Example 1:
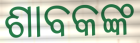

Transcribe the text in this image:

ଶାବକଙ୍କ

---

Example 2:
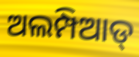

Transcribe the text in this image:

ଅଲମ୍ପିଆଡ୍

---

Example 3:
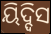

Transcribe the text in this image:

ୟିଦ୍ଦିସ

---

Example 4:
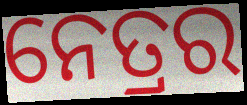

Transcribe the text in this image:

ନେତ୍ରର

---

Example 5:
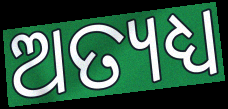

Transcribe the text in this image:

ଅତ୍ୟଧ୍ୟ